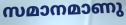
സമാനമാണു